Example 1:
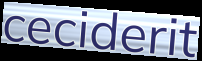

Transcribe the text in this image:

ceciderit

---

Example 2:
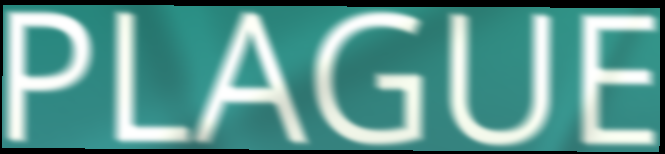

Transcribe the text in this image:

PLAGUE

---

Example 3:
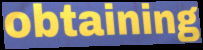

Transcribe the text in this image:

obtaining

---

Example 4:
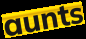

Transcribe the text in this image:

aunts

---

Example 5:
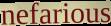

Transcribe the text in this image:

nefarious